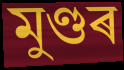
মুণ্ডৰ